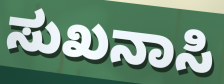
ಸುಖನಾಸಿ